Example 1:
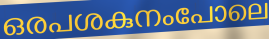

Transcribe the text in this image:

ഒരപശകുനംപോലെ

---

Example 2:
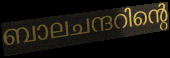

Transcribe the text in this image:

ബാലചന്ദറിന്റെ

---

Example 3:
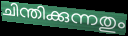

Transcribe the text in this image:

ചിന്തിക്കുന്നതും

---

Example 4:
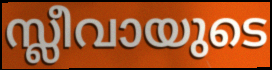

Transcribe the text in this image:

സ്ലീവായുടെ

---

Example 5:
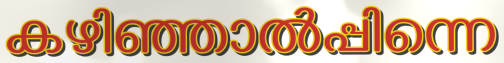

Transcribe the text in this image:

കഴിഞ്ഞാൽപ്പിന്നെ